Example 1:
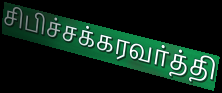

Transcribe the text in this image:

சிபிச்சக்கரவர்த்தி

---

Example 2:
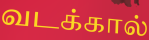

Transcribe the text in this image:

வடக்கால்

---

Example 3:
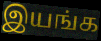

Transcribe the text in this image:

இயங்க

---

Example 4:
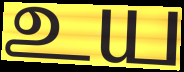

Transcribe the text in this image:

உய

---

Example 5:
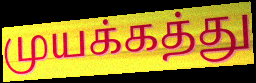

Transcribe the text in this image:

முயக்கத்து